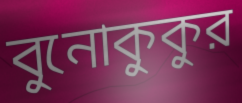
বুনোকুকুর